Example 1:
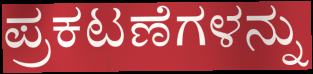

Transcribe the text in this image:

ಪ್ರಕಟಣೆಗಳನ್ನು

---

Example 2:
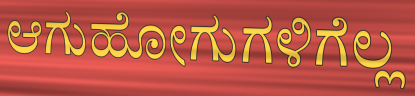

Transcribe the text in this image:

ಆಗುಹೋಗುಗಳಿಗೆಲ್ಲ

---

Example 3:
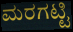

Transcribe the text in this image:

ಮರಗಟ್ಟಿ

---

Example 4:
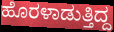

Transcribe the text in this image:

ಹೊರಳಾಡುತ್ತಿದ್ದ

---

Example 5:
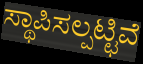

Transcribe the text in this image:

ಸ್ಥಾಪಿಸಲ್ಪಟ್ಟಿವೆ